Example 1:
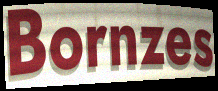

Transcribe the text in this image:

Bornzes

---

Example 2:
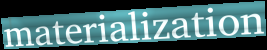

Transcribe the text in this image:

materialization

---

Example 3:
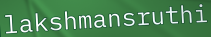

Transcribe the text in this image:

lakshmansruthi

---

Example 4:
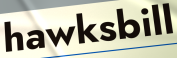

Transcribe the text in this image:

hawksbill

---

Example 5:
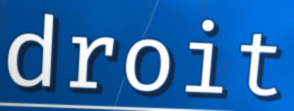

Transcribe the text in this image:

droit